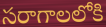
సరాగాలలోకి